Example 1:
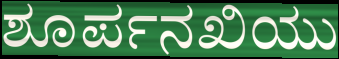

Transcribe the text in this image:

ಶೂರ್ಪನಖಿಯು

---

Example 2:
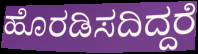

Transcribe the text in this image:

ಹೊರಡಿಸದಿದ್ದರೆ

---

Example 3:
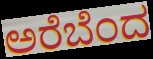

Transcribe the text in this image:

ಅರೆಬೆಂದ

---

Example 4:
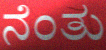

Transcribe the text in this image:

ನೆಂತು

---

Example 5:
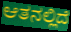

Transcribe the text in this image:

ಆತನಲ್ಲಿದೆ